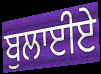
ਬੁਲਾਈਏ